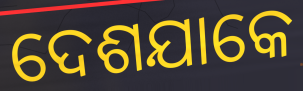
ଦେଶଯାକେ